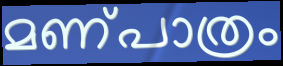
മണ്പാത്രം